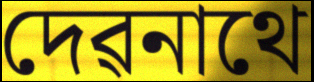
দেৱনাথে